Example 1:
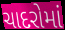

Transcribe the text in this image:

ચાદરોમાં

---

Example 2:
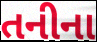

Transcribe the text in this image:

તનીના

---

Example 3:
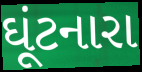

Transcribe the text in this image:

ઘૂંટનારા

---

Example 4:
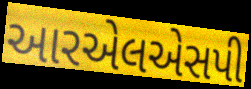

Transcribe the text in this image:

આરએલએસપી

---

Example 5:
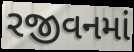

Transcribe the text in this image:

રજીવનમાં